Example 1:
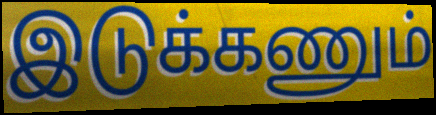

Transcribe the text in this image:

இடுக்கணும்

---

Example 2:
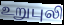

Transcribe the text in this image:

உறுபுலி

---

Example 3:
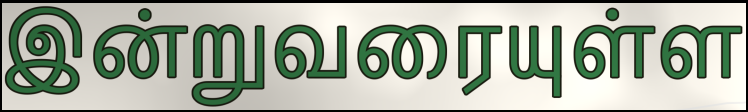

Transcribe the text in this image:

இன்றுவரையுள்ள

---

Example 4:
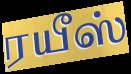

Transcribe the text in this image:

ரயீஸ்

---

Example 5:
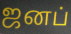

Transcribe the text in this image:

ஜனப்